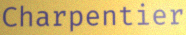
Charpentier